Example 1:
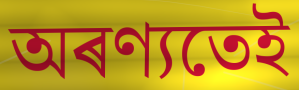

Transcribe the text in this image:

অৰণ্যতেই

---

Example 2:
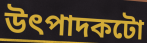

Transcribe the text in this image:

উৎপাদকটো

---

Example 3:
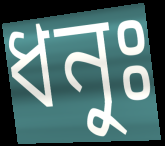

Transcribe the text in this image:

ধনুঃ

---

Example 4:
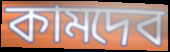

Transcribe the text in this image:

কামদেব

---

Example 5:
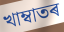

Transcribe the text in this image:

খাম্বাতৰ